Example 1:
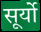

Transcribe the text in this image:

सूर्यो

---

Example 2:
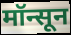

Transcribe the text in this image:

मॉन्सून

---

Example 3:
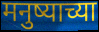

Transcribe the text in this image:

मनुष्याच्या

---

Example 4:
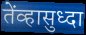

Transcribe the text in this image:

तेंव्हासुध्दा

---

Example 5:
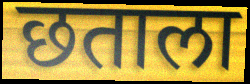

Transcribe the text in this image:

छताला